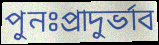
পুনঃপ্রাদুর্ভাব